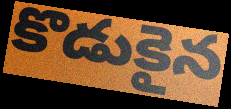
కొడుకైన